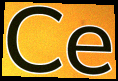
Ce